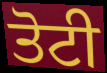
ਤੋਟੀ